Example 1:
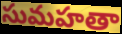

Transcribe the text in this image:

సుమహతా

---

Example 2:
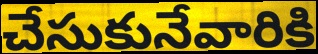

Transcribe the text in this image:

చేసుకునేవారికి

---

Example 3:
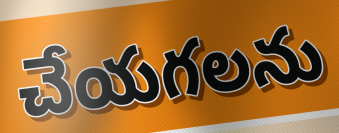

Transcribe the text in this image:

చేయగలను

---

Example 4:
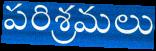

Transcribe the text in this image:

పరిశ్రమలు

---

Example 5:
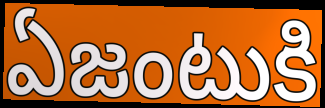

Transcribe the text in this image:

ఏజంటుకి